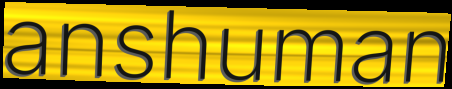
anshuman